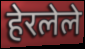
हेरलेले